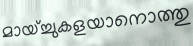
മായ്ച്ചുകളയാനൊത്തു